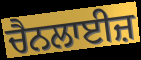
ਚੈਨਲਾਈਜ਼